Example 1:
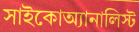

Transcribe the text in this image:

সাইকোঅ্যানালিস্ট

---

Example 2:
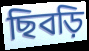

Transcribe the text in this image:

ছিবড়ি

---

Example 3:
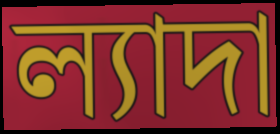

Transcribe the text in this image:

ল্যাদা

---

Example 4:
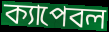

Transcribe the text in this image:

ক্যাপেবল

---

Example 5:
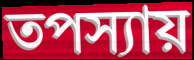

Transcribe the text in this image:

তপস্যায়